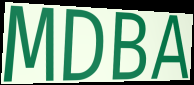
MDBA